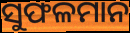
ସୁଫଳମାନ